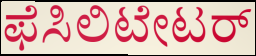
ಫೆಸಿಲಿಟೇಟರ್